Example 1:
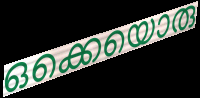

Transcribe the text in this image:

ഒക്കെയൊരു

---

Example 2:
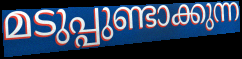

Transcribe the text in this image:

മടുപ്പുണ്ടാക്കുന്ന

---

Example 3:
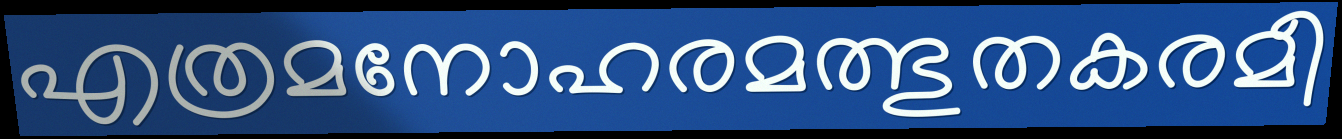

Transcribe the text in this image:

എത്രമനോഹരമത്ഭുതകരമീ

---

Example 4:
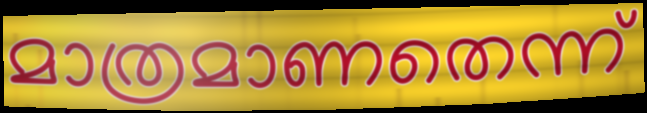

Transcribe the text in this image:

മാത്രമാണതെന്ന്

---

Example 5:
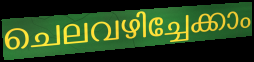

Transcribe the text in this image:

ചെലവഴിച്ചേക്കാം